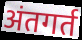
अंतगर्त